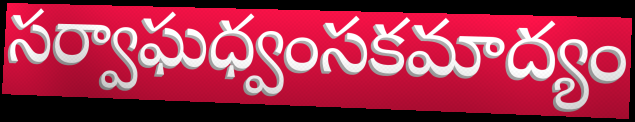
సర్వాఘధ్వంసకమాద్యం